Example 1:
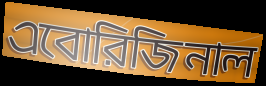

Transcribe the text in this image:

এবোরিজিনাল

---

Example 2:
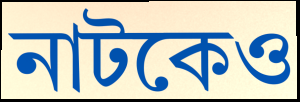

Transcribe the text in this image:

নাটকেও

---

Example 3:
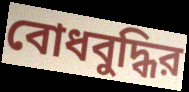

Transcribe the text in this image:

বোধবুদ্ধির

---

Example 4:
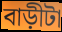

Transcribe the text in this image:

বাড়ীটা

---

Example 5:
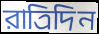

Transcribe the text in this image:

রাত্রিদিন